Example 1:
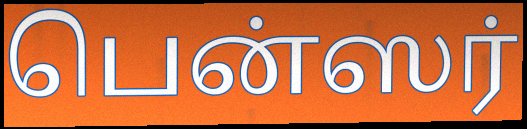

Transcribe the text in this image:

பென்ஸர்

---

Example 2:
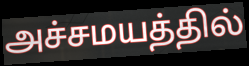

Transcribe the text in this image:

அச்சமயத்தில்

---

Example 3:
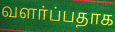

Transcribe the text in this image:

வளர்ப்பதாக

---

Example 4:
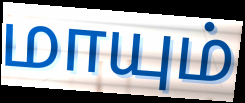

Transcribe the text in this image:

மாயும்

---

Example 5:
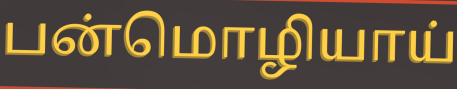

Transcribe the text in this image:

பன்மொழியாய்